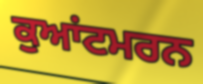
ਕੁਆਂਟਮਰਨ